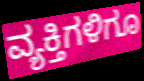
ವ್ಯಕ್ತಿಗಳಿಗೂ